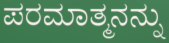
ಪರಮಾತ್ಮನನ್ನು